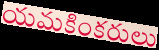
యమకింకరులు